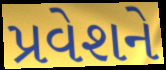
પ્રવેશને